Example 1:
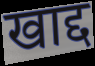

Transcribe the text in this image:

खाद्द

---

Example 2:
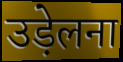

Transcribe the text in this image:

उड़ेलना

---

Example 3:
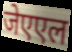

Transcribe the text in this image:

जेएएल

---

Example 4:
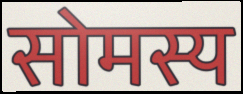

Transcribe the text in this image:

सोमस्य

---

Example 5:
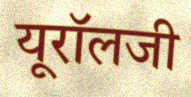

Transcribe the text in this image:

यूरॉलजी